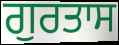
ਗੁਰਤਾਸ